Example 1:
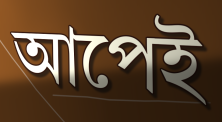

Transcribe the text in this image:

আপেই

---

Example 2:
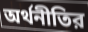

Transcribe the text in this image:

অর্থনীতির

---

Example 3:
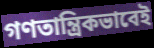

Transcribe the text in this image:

গণতান্ত্রিকভাবেই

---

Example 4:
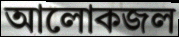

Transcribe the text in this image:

আলোকজল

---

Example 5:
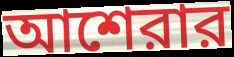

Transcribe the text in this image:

আশেরার